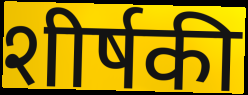
शीर्षकी